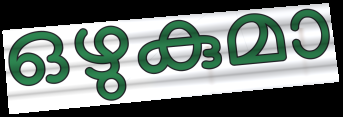
ഒഴുകുമാ